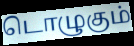
டொழுகும்